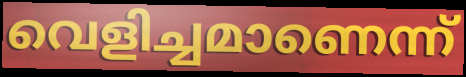
വെളിച്ചമാണെന്ന്